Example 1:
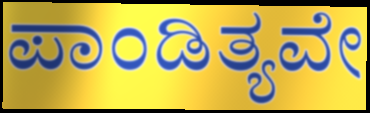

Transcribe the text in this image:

ಪಾಂಡಿತ್ಯವೇ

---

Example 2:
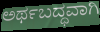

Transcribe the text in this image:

ಅರ್ಥಬದ್ಧವಾಗಿ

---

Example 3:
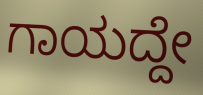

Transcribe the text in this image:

ಗಾಯದ್ದೇ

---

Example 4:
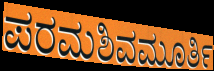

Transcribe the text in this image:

ಪರಮಶಿವಮೂರ್ತಿ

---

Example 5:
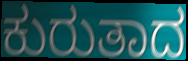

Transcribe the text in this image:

ಕುರುತಾದ